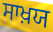
ਸਾਖ਼ਯ